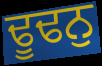
ਢੂਢਨੁ